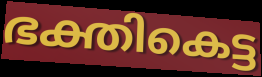
ഭക്തികെട്ട